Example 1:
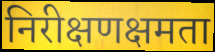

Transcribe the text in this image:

निरीक्षणक्षमता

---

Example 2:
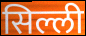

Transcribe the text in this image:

सिल्ली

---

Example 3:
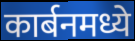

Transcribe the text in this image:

कार्बनमध्ये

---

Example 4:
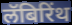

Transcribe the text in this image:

लॅबिरिंथ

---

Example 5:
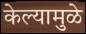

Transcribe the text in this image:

केल्यामुळे